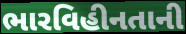
ભારવિહીનતાની